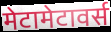
मेटामेटावर्स